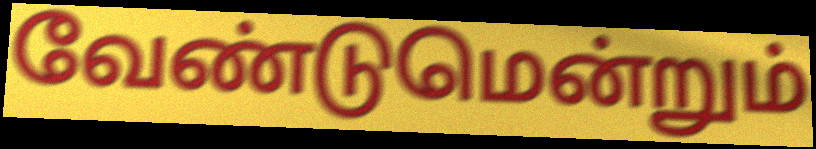
வேண்டுமென்றும்